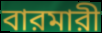
বারমারী